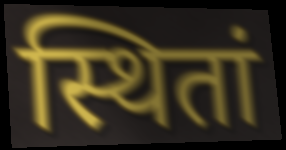
स्थितां